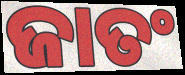
ଜାତଂ